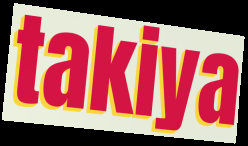
takiya